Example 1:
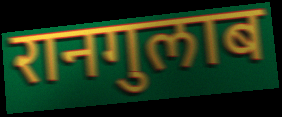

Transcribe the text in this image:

रानगुलाब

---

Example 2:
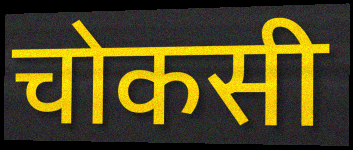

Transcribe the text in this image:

चोकसी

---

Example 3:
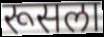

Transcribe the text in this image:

रूसला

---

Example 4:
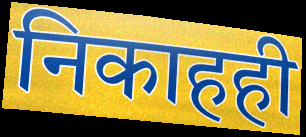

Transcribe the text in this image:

निकाहही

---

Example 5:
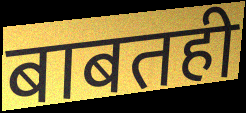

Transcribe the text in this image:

बाबतही